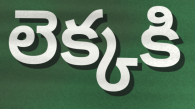
లెక్కకి